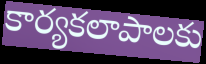
కార్యకలాపాలకు